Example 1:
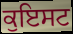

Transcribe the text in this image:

ਕੁਇਸਟ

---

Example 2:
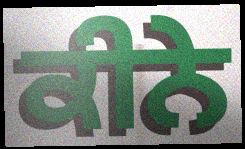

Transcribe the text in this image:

ਕੀਨੇ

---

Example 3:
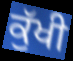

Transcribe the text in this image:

ਕੁੱਖੀ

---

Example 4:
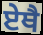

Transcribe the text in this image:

ਏਥੈ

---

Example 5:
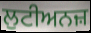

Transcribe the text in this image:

ਲੁਟੀਅਨਜ਼